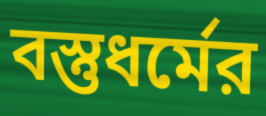
বস্তুধর্মের